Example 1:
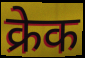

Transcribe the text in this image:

क्रेक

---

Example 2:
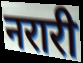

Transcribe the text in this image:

नरारी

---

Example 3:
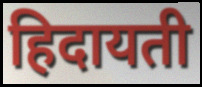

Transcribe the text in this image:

हिदायती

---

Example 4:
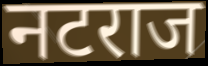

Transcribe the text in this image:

नटराज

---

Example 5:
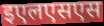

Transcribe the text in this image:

इएलएसएस